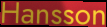
Hansson